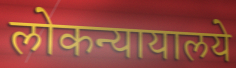
लोकन्यायालये